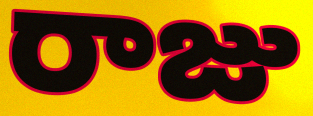
రాజు